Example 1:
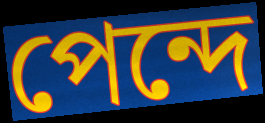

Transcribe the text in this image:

পেন্দে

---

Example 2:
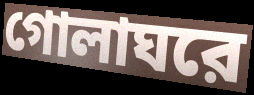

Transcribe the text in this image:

গোলাঘরে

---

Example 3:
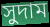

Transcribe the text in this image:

সুদাম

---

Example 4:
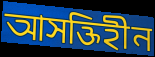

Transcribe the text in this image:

আসক্তিহীন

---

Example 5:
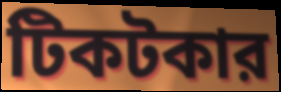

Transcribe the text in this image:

টিকটকার